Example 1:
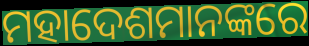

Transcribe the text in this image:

ମହାଦେଶମାନଙ୍କରେ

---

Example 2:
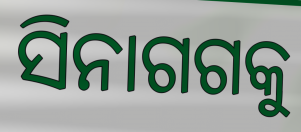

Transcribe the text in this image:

ସିନାଗଗକୁ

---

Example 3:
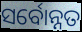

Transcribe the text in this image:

ସର୍ବୋନ୍ନତ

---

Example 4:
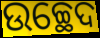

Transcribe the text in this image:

ଉଚ୍ଛେଦ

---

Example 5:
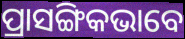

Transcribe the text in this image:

ପ୍ରାସଙ୍ଗିକଭାବେ